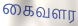
கைவளர